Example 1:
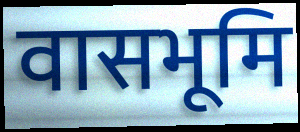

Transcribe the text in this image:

वासभूमि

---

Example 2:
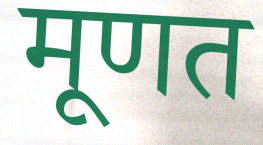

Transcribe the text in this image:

मूणत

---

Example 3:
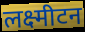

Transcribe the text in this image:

लक्ष्मीटन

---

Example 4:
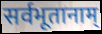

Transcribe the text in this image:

सर्वभूतानाम्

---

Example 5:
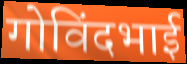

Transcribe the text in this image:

गोविंदभाई